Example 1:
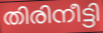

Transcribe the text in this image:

തിരിനീട്ടി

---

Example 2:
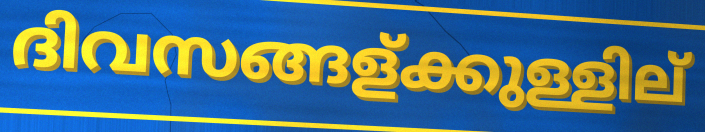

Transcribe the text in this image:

ദിവസങ്ങള്ക്കുള്ളില്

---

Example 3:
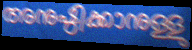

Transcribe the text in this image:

അനുഷ്ഠിക്കാനുള്ളു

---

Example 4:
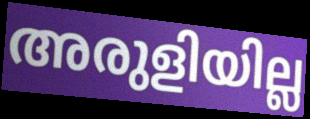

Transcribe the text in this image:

അരുളിയില്ല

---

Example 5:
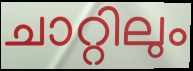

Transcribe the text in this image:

ചാറ്റിലും